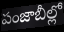
పంజాబీల్లో